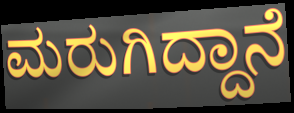
ಮರುಗಿದ್ದಾನೆ